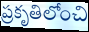
ప్రకృతిలోంచి